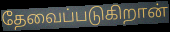
தேவைப்படுகிறான்